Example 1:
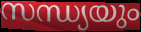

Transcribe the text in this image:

സന്ധ്യയും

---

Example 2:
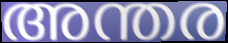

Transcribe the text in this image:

അന്തര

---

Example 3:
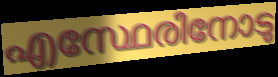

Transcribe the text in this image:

എസ്ഥേരിനോടു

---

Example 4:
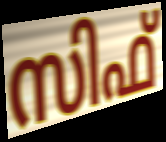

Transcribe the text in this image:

സിഫ്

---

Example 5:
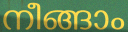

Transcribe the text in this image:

നീങ്ങാം